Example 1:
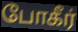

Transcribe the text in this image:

போகீர்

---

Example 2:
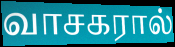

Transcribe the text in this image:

வாசகரால்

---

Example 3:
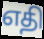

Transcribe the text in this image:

எதி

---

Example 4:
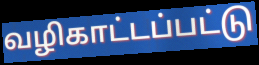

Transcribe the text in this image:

வழிகாட்டப்பட்டு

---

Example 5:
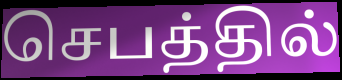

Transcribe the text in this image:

செபத்தில்